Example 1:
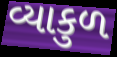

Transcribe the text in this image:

વ્યાકુળ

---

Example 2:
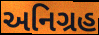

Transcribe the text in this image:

અનિગ્રહ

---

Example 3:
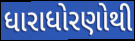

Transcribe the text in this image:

ધારાધોરણોથી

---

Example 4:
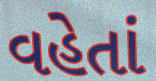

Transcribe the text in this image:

વહેતાં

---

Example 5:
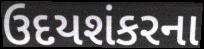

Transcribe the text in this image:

ઉદયશંકરના